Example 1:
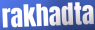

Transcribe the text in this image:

rakhadta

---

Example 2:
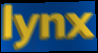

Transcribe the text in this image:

lynx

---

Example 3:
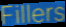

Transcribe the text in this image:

Fillers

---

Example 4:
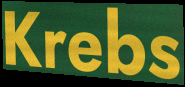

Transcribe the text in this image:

Krebs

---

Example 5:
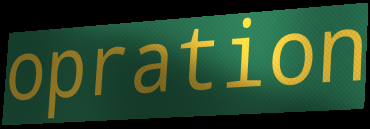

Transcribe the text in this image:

opration